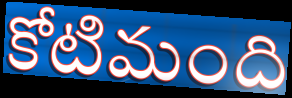
కోటిమంది